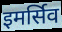
इमर्सिव